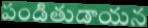
పండితుడాయన